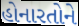
હોનારતોને